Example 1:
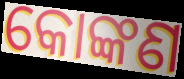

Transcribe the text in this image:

କୋଙ୍କଣ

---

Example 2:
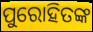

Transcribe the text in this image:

ପୁରୋହିତଙ୍କ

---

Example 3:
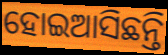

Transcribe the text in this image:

ହୋଇଆସିଛନ୍ତି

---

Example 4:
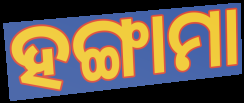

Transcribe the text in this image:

ହଙ୍ଗାମା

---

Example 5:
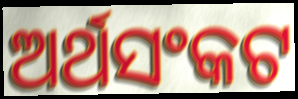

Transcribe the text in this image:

ଅର୍ଥସଂକଟ